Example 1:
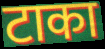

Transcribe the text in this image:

टाका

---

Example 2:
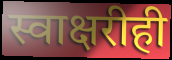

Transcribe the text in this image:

स्वाक्षरीही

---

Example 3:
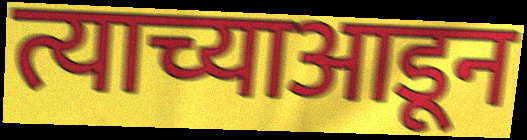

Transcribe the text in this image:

त्याच्याआडून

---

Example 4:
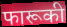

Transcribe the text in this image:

फारूकी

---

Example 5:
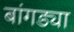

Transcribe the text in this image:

बांगड्या